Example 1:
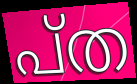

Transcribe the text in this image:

പ്ത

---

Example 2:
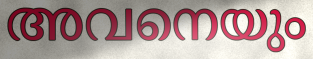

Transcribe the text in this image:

അവനെയും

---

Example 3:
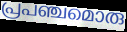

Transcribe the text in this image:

പ്രപഞ്ചമൊരു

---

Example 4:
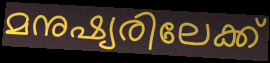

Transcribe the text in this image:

മനുഷ്യരിലേക്ക്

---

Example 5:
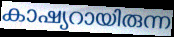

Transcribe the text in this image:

കാഷ്യറായിരുന്ന